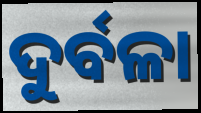
ଦୁର୍ବଳା